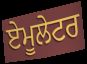
ਏਮੂਲੇਟਰ